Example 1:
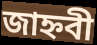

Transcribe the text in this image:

জাহ্নবী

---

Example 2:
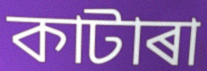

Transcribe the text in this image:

কাটাৰা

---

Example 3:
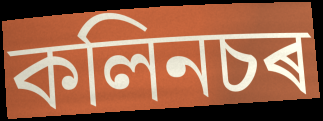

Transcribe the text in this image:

কলিনচৰ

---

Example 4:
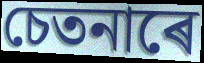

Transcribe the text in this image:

চেতনাৰে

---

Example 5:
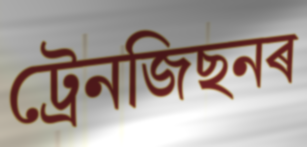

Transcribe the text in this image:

ট্ৰেনজিছনৰ